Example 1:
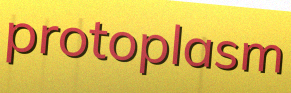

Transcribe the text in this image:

protoplasm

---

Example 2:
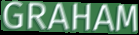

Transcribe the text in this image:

GRAHAM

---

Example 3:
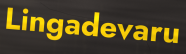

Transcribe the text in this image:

Lingadevaru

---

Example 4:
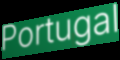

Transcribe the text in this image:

Portugal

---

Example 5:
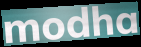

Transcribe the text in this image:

modha